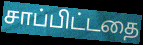
சாப்பிட்டதை